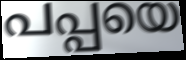
പപ്പയെ